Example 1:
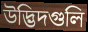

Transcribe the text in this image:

উদ্ভিদগুলি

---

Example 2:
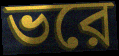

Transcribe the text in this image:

ভরে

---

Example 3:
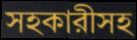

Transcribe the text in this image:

সহকারীসহ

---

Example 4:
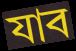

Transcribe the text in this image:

যাব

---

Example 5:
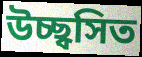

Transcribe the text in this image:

উচ্ছ্বসিত